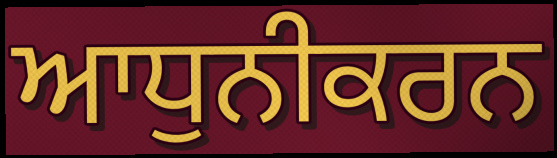
ਆਧੁਨੀਕਰਨ